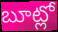
బూట్లో